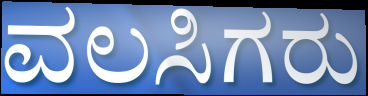
ವಲಸಿಗರು